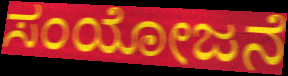
ಸಂಯೋಜನೆ